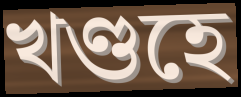
খণ্ডহে